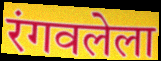
रंगवलेला